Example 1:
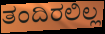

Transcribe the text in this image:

ತಂದಿರಲಿಲ್ಲ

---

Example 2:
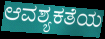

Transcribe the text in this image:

ಆವಶ್ಯಕತೆಯ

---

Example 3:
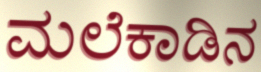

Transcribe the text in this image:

ಮಲೆಕಾಡಿನ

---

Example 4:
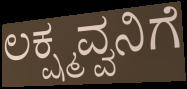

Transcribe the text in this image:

ಲಕ್ಷ್ಮವ್ವನಿಗೆ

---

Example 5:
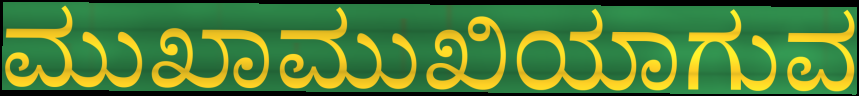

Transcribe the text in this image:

ಮುಖಾಮುಖಿಯಾಗುವ